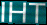
IHT